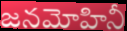
జనమోహినీ